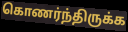
கொணர்ந்திருக்க